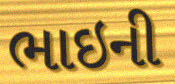
ભાઇની